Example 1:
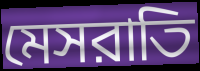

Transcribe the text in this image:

মেসরাতি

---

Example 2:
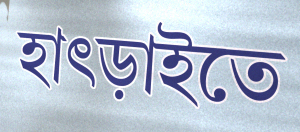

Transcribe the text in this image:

হাৎড়াইতে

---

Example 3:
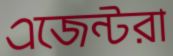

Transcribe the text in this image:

এজেন্টরা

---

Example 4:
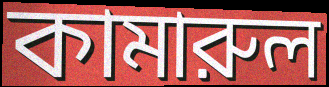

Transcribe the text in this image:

কামারুল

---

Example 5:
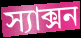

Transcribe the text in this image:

স্যাক্সন